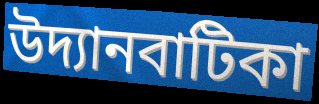
উদ্যানবাটিকা